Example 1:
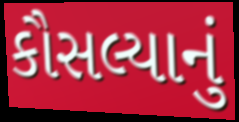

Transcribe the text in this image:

કૌસલ્યાનું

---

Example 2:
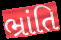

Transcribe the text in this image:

ભ્રાંતિ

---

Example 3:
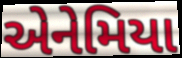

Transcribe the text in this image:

એનેમિયા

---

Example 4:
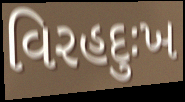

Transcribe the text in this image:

વિરહદુઃખ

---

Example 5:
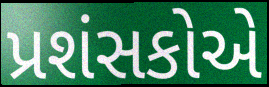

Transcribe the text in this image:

પ્રશંસકોએ